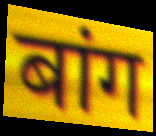
बांग